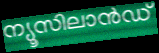
ന്യൂസിലാൻഡ്